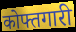
कोफ्तगारी